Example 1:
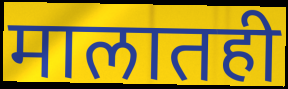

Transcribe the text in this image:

मालातही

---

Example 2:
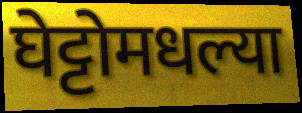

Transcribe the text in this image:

घेट्टोमधल्या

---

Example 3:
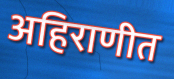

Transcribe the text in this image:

अहिराणीत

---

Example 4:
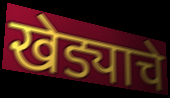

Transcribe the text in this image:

खेड्याचे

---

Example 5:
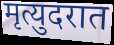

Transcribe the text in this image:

मृत्युदरात